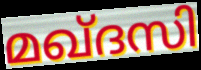
മഖ്ദസി